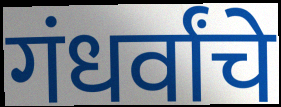
गंधर्वांचे